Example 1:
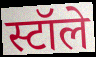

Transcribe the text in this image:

स्टॉले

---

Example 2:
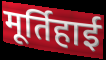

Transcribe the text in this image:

मूर्तिहाई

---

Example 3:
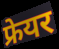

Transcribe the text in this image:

फ्रेयर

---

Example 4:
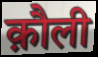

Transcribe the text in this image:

क़ौली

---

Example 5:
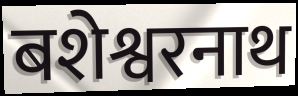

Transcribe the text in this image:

बशेश्वरनाथ